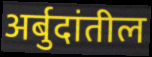
अर्बुदांतील